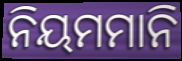
ନିୟମମାନି